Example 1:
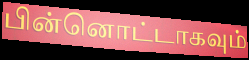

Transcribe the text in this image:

பின்னொட்டாகவும்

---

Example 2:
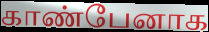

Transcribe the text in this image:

காண்பேனாக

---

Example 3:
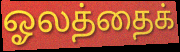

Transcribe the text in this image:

ஓலத்தைக்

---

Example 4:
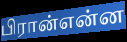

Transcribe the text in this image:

பிரான்என்ன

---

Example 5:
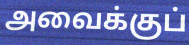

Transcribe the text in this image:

அவைக்குப்